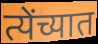
त्येंच्यात